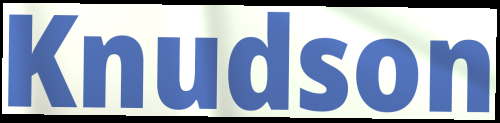
Knudson